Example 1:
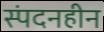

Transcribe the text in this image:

स्पंदनहीन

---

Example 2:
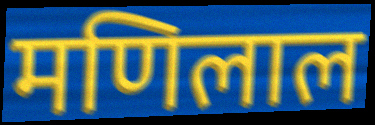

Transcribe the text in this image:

मणिलाल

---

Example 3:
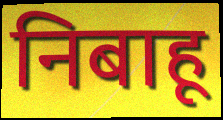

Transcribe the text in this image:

निबाहू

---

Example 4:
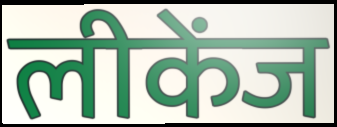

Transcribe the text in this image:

लीकेंज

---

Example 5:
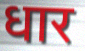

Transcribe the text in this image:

धार